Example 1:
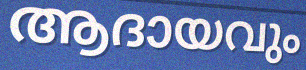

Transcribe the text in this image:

ആദായവും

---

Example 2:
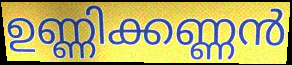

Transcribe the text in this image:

ഉണ്ണിക്കണ്ണൻ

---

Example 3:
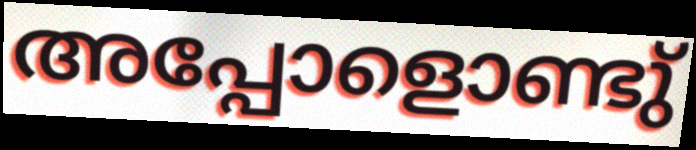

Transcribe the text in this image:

അപ്പോളൊണ്ടു്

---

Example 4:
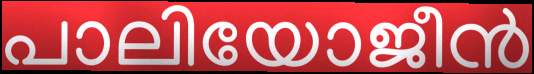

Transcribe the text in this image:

പാലിയോജീൻ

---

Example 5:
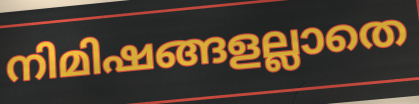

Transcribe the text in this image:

നിമിഷങ്ങളല്ലാതെ